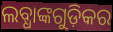
ଲବ୍ଧାଙ୍କଗୁଡ଼ିକର